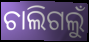
ଚାଲିଗଲୁଁ